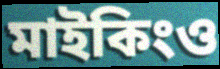
মাইকিংও